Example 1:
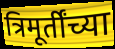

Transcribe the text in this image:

त्रिमूर्तींच्या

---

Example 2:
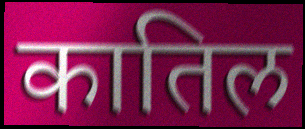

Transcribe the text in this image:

कातिल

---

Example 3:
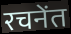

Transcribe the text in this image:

रचनेंत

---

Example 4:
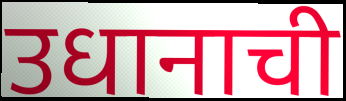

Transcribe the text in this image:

उधानाची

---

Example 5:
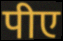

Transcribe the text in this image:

पीए